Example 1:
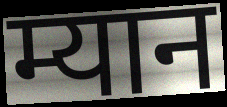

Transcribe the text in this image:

म्यान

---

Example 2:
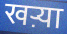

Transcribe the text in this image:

खऱ्‍या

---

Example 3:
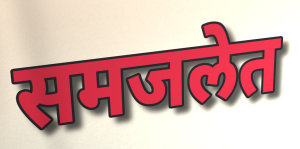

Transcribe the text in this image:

समजलेत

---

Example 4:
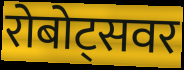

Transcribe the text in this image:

रोबोट्सवर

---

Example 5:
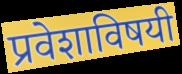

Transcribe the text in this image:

प्रवेशाविषयी